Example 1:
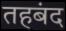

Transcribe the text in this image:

तहबंद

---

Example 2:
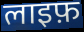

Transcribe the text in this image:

लाइफ़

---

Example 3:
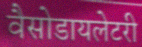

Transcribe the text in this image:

वैसोडायलेटरी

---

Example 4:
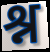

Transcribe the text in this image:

श्न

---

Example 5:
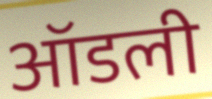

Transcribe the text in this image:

ऑडली